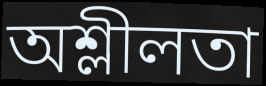
অশ্লীলতা